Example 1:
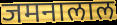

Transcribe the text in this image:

जमनालाल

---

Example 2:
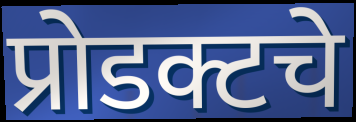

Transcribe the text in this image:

प्रोडक्टचे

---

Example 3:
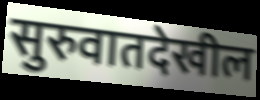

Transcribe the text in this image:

सुरुवातदेखील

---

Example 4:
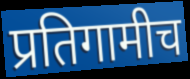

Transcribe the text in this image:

प्रतिगामीच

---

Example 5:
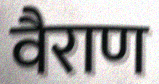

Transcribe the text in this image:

वैराण